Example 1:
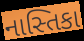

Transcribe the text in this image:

નાસ્તિકા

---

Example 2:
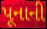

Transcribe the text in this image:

પૂનાની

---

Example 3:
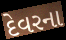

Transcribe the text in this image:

દેવરના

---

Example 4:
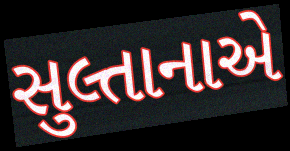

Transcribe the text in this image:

સુલ્તાનાએ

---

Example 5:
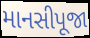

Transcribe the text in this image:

માનસીપૂજા